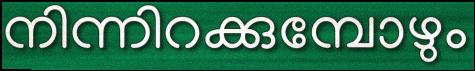
നിന്നിറക്കുമ്പോഴും